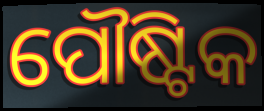
ପୌଷ୍ଟିକ